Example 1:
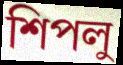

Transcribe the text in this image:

শিপলু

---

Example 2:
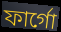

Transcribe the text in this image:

ফার্গো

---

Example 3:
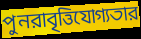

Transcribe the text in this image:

পুনরাবৃত্তিযোগ্যতার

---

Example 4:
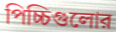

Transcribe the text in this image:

পিচ্চিগুলোর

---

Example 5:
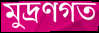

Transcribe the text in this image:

মুদ্রণগত